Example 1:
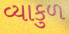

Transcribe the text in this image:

વ્યાકુળ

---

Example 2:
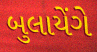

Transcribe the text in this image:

બુલાયેંગે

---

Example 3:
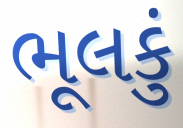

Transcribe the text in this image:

ભૂલકું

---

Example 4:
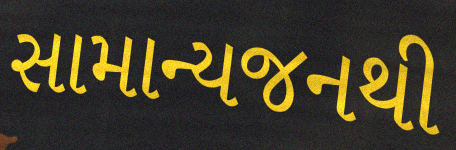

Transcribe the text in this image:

સામાન્યજનથી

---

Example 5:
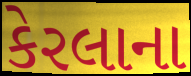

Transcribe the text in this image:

કેરલાના